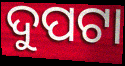
ଦୁପଟା